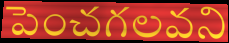
పెంచగలవని